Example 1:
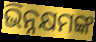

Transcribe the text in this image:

ଭିନ୍ନକ୍ଷମଙ୍କ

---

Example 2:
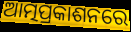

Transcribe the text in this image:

ଆତ୍ମପ୍ରକାଶନରେ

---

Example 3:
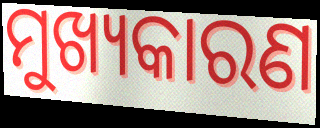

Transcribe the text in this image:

ମୁଖ୍ୟକାରଣ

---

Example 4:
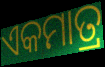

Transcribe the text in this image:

ଏକମାତ୍ର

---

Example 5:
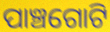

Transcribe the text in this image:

ପାଞ୍ଚଗୋଟି